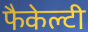
फैकेल्टी